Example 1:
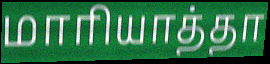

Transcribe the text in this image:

மாரியாத்தா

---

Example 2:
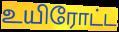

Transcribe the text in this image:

உயிரோட்ட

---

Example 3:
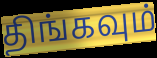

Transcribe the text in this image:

திங்கவும்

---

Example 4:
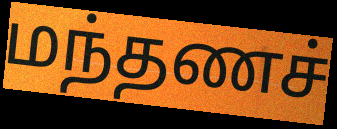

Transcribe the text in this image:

மந்தணச்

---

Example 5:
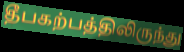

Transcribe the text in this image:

தீபகற்பத்திலிருந்து